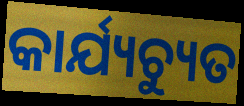
କାର୍ଯ୍ୟଚ୍ୟୁତ